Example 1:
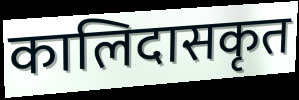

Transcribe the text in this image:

कालिदासकृत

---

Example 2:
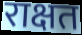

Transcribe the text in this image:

राक्षत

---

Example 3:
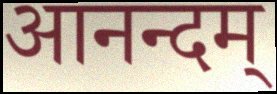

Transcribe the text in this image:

आनन्दम्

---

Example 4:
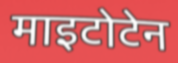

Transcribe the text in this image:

माइटोटेन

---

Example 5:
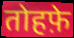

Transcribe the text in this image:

तोहफ़े